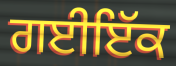
ਗਈਇੱਕ